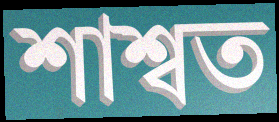
শাশ্বত